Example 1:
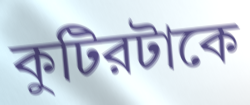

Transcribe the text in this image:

কুটিরটাকে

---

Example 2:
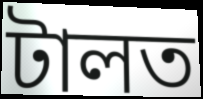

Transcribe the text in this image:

টালত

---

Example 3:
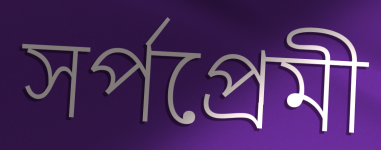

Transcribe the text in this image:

সর্পপ্রেমী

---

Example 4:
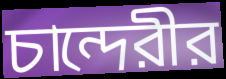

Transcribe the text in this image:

চান্দেরীর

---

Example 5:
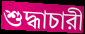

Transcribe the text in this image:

শুদ্ধাচারী